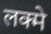
लक्मे